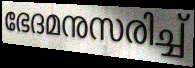
ഭേദമനുസരിച്ച്